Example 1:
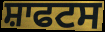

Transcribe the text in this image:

ਸ਼ਾਫਟਸ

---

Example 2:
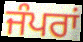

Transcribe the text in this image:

ਜੰਪਰਾਂ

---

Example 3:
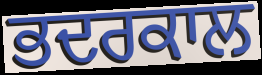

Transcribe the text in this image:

ਭਦਰਕਾਲ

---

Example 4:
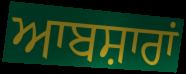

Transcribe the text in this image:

ਆਬਸ਼ਾਰਾਂ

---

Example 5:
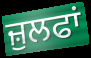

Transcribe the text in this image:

ਜ਼ੁਲਫਾਂ